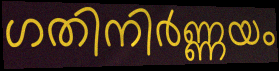
ഗതിനിർണ്ണയം